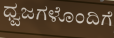
ಧ್ವಜಗಳೊಂದಿಗೆ